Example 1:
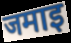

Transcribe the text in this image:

जमाइ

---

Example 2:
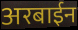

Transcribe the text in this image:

अरबाईन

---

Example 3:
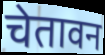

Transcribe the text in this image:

चेतावन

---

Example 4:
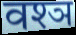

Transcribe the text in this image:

वश्ञ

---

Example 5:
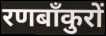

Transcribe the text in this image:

रणबाँकुरों